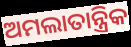
ଅମଲାତାନ୍ତ୍ରିକ